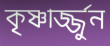
কৃষ্ণার্জ্জুন